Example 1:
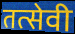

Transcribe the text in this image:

तत्सेवी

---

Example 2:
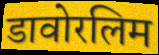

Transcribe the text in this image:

डावोरलिम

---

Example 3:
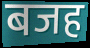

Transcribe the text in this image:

बजह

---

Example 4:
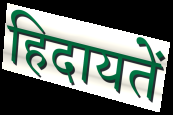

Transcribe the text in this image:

हिदायतें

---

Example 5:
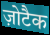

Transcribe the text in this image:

ज़ोटैक